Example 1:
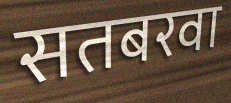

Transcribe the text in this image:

सतबरवा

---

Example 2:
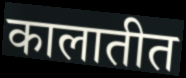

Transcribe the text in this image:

कालातीत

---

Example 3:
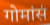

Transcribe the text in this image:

गोमांसं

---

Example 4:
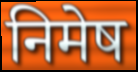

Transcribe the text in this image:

निमेष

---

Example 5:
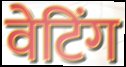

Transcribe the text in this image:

वेटिंग